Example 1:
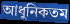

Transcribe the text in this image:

আধুনিকতম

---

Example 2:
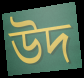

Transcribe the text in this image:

উদ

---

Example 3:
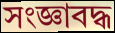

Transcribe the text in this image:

সংজ্ঞাবদ্ধ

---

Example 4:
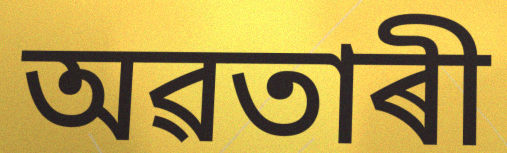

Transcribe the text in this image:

অৱতাৰী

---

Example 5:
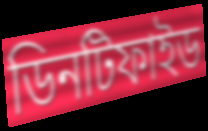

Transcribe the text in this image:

ডিনটিফাইড